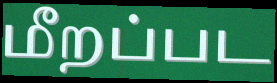
மீறப்பட